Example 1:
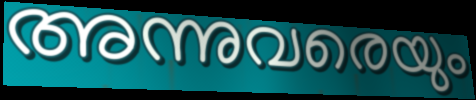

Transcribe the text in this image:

അന്നുവരെയും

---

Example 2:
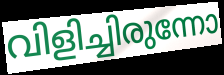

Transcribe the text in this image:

വിളിച്ചിരുന്നോ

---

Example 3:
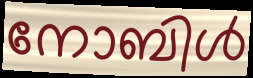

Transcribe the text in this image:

നോബിൾ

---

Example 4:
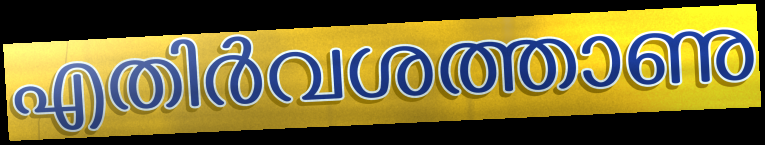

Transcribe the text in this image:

എതിർവശത്താണു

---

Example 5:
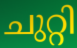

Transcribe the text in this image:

ചുറ്റി